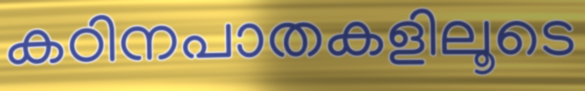
കഠിനപാതകളിലൂടെ